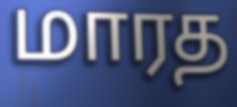
மாரத